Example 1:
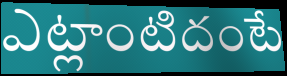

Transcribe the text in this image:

ఎట్లాంటిదంటే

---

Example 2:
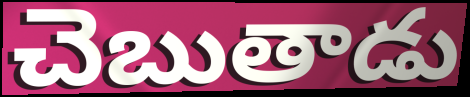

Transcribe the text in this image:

చెబుతాడు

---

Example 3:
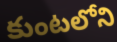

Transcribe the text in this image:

కుంటలోని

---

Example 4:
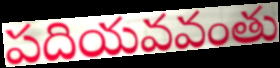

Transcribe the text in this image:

పదియవవంతు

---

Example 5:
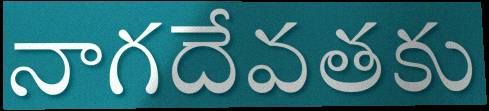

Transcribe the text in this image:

నాగదేవతకు